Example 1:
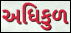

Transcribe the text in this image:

અધિકુળ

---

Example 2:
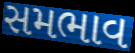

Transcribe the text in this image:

સમભાવ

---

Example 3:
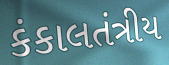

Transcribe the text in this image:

કંકાલતંત્રીય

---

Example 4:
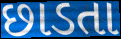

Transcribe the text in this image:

છાડતા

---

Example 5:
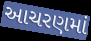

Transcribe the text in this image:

આચરણમાં